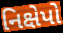
નિક્ષેપો